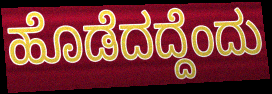
ಹೊಡೆದದ್ದೆಂದು